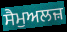
ਸੈਮੁਅਲਜ਼